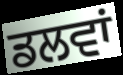
ਡਲਵਾਂ